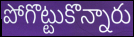
పోగొట్టుకొన్నారు